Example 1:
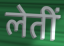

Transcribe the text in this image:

लेतीं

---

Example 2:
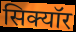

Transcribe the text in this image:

सिक्यॉर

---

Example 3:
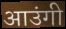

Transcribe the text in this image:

आउंगी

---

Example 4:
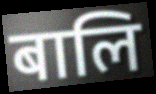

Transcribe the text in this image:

बालि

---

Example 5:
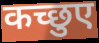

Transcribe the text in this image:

कच्छुए